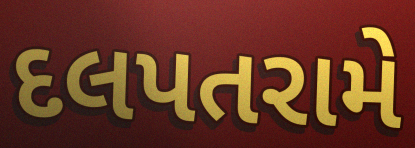
દલપતરામે